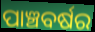
ପାଞ୍ଚବର୍ଷର